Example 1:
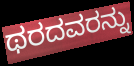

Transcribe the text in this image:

ಥರದವರನ್ನು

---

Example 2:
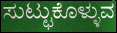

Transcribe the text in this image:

ಸುಟ್ಟುಕೊಳ್ಳುವ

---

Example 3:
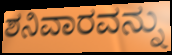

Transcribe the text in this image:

ಶನಿವಾರವನ್ನು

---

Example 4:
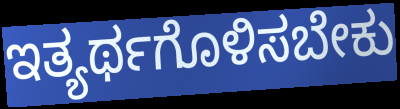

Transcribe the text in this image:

ಇತ್ಯರ್ಥಗೊಳಿಸಬೇಕು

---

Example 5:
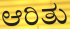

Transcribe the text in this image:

ಆರಿತು